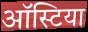
ऑस्टिया